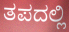
ತಪದಲ್ಲಿ